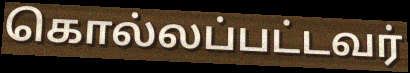
கொல்லப்பட்டவர்